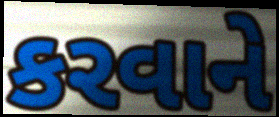
કરવાને